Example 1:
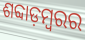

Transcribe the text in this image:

ଶବ୍ଦାଡ଼ମ୍ବରର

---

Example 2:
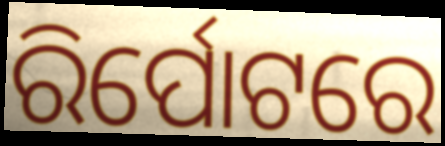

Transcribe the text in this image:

ରିର୍ପୋଟରେ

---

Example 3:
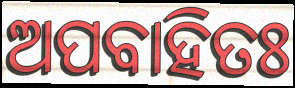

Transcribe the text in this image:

ଅପବାହିତଃ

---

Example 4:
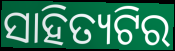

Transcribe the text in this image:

ସାହିତ୍ୟଟିର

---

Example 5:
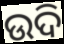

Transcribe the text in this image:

ଉଦି